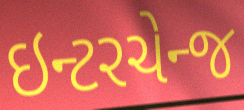
ઇન્ટરચેન્જ